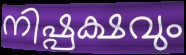
നിഷ്പക്ഷവും